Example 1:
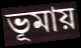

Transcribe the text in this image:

ভূমায়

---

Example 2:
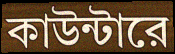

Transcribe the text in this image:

কাউন্টারে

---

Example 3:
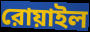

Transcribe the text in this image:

রোয়াইল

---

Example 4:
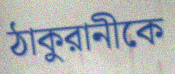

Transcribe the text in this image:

ঠাকুরানীকে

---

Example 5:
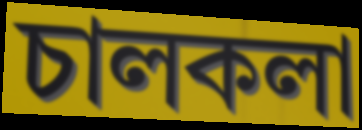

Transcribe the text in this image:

চালকলা